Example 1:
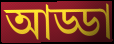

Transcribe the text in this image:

আড্ডা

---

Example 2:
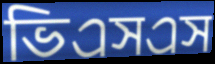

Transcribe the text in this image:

ভিএসএস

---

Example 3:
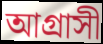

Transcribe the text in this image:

আগ্রাসী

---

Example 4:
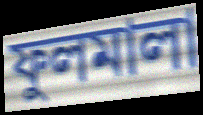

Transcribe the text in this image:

ফুলমালা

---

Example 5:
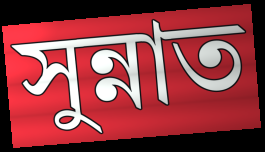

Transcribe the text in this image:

সুন্নাত